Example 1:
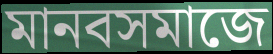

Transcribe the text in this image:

মানবসমাজে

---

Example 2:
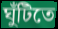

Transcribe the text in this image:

ঘুঁটিতে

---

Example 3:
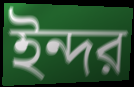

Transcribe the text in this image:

ইন্দর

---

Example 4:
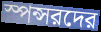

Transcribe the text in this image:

স্পন্সরদের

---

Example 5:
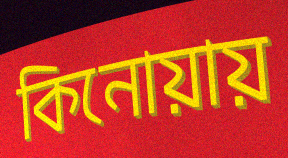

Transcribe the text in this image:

কিনোয়ায়